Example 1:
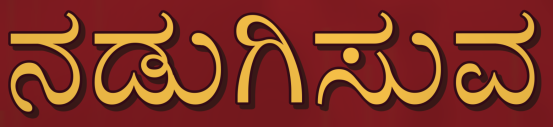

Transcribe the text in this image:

ನಡುಗಿಸುವ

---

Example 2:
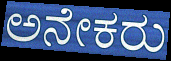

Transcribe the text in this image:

ಅನೇಕರು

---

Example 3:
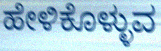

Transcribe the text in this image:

ಹೇಳಿಕೊಳ್ಳುವ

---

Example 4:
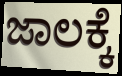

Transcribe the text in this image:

ಜಾಲಕ್ಕೆ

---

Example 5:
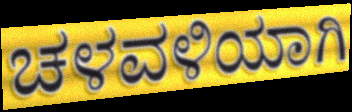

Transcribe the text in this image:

ಚಳವಳಿಯಾಗಿ